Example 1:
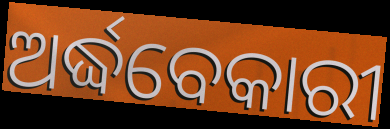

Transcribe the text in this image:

ଅର୍ଦ୍ଧବେକାରୀ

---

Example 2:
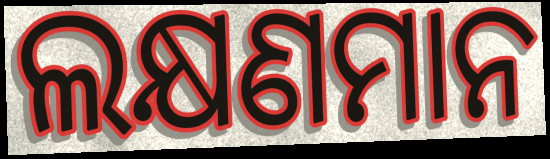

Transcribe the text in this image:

ଲକ୍ଷଣମାନ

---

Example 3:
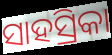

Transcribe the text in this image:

ସାହସ୍ରିକା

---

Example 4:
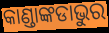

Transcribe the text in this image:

କାଣ୍ଡାଙ୍କଡାଭୁର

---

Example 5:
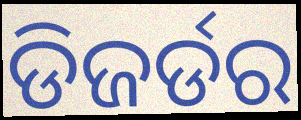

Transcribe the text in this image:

ଡିଜର୍ଡର